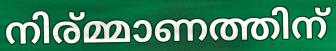
നിര്മ്മാണത്തിന്